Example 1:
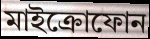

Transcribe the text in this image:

মাইক্রোফোন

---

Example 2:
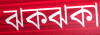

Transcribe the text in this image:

ঝকঝকা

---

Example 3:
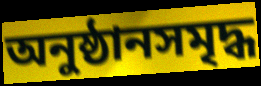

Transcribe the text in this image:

অনুষ্ঠানসমৃদ্ধ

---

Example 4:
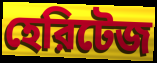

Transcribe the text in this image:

হেরিটেজ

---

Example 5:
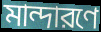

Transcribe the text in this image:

মান্দারণে